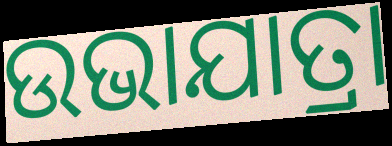
ଉଭାଯାତ୍ରା